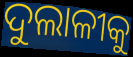
ଦୁଲାଳୀକୁ